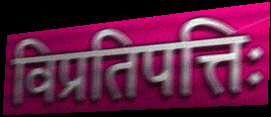
विप्रतिपत्तिः